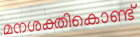
മനശക്തികൊണ്ട്